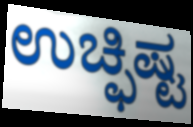
ಉಚ್ಫಿಷ್ಟ